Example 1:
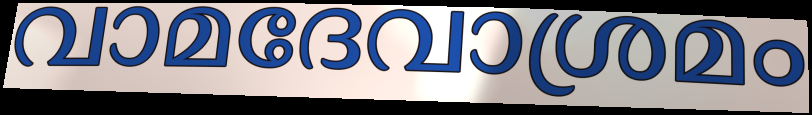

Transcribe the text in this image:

വാമദേവാശ്രമം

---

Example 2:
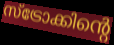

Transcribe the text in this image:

സ്ട്രോക്കിന്റെ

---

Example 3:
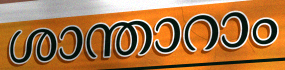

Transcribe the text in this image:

ശാന്താറാം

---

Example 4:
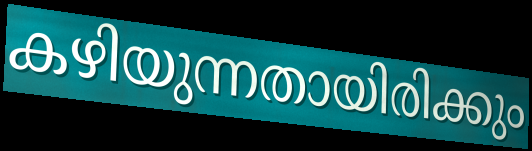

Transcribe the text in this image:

കഴിയുന്നതായിരിക്കും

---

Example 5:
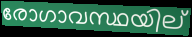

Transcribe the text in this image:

രോഗാവസ്ഥയില്